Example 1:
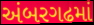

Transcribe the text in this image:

અંબરગઢમાં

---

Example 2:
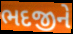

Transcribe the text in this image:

ભદજીને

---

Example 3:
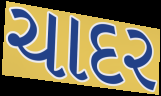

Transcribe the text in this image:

ચાદર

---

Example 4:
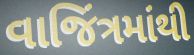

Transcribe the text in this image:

વાજિંત્રમાંથી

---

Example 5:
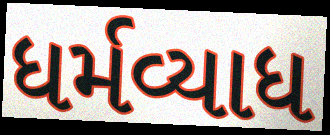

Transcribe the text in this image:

ધર્મવ્યાધ